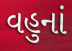
વહુનાં